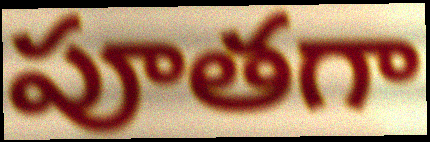
పూతగా